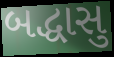
બદ્ધાસુ